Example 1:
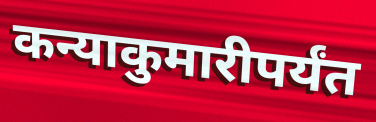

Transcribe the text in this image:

कन्याकुमारीपर्यंत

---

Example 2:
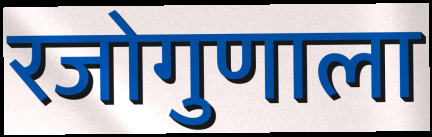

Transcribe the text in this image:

रजोगुणाला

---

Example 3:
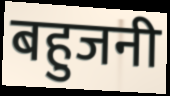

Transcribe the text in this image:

बहुजनी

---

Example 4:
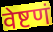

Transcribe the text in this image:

वेष्टणं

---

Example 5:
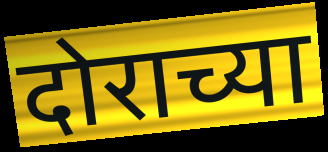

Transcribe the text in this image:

दोराच्या